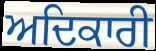
ਅਦਿਕਾਰੀ